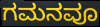
ಗಮನವೂ